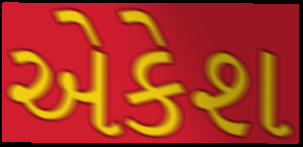
એકેશ